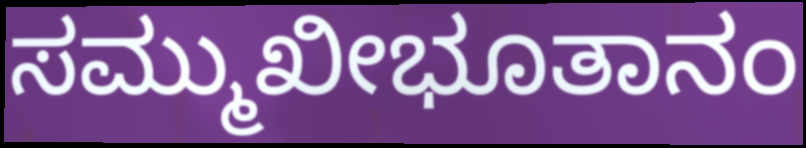
ಸಮ್ಮುಖೀಭೂತಾನಂ